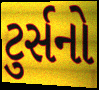
ટુર્સનો